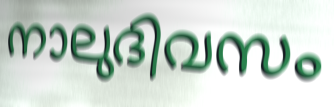
നാലുദിവസം